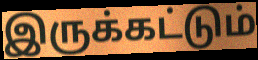
இருக்கட்டும்